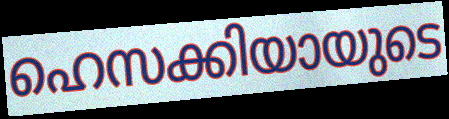
ഹെസക്കിയായുടെ